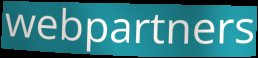
webpartners